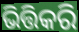
ଭିତ୍ତିକରି